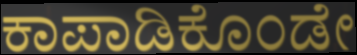
ಕಾಪಾಡಿಕೊಂಡೇ